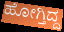
ಹೋಗ್ತಿದ್ದ